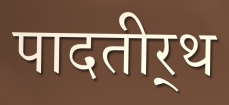
पादतीर्थ